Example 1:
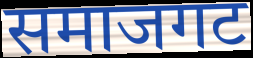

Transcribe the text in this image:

समाजगट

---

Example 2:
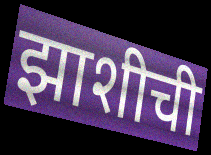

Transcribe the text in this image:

झाशीची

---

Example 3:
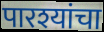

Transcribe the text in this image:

पारश्यांचा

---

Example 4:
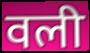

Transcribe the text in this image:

वली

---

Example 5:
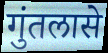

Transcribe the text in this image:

गुंतलासे